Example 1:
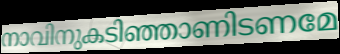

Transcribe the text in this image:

നാവിനുകടിഞ്ഞാണിടണമേ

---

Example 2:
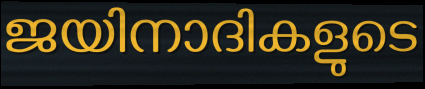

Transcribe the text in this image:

ജയിനാദികളുടെ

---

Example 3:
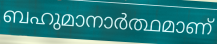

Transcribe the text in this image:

ബഹുമാനാർത്ഥമാണ്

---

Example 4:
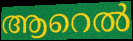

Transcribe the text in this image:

ആറെൽ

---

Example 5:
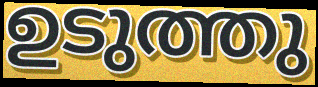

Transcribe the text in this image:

ഉടുത്തു